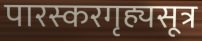
पारस्करगृह्यसूत्र